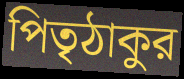
পিতৃঠাকুর